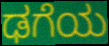
ಢಗೆಯ